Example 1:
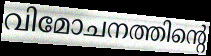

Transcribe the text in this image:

വിമോചനത്തിന്റെ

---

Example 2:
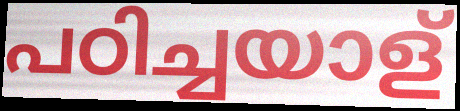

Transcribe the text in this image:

പഠിച്ചയാള്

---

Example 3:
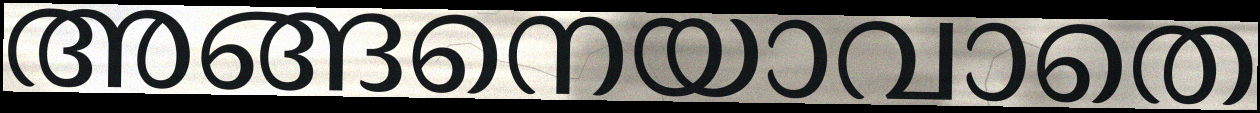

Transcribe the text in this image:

അങ്ങനെയാവാതെ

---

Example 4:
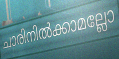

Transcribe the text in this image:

ചാരിനിൽക്കാമല്ലോ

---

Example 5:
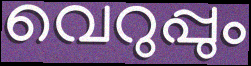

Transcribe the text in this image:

വെറുപ്പും